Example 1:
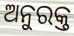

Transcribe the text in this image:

ଅନୁରକ୍ତ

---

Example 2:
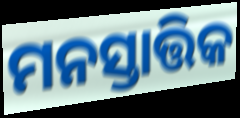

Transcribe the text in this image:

ମନସ୍ତାତ୍ତିକ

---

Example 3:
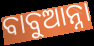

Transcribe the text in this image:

ବାବୁଆନ୍ନା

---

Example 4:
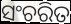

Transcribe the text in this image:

ସଂଚରିତ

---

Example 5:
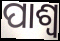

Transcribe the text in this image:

ପାଶ୍ୱ